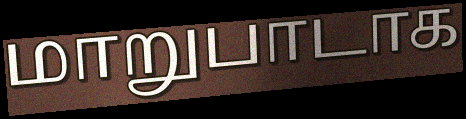
மாறுபாடாக